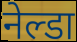
नेल्डा